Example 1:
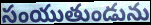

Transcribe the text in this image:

సంయుతుండును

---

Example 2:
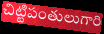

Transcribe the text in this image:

చిట్టిపంతులుగారి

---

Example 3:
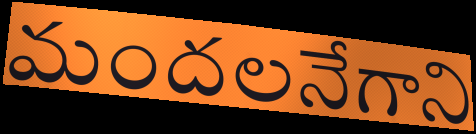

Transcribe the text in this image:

మందలనేగాని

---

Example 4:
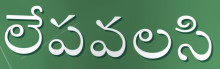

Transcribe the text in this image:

లేపవలసి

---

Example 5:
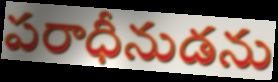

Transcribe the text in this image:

పరాధీనుడను